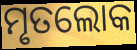
ମୃତଲୋକ